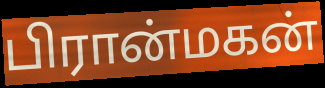
பிரான்மகன்